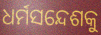
ଧର୍ମସନ୍ଦେଶକୁ